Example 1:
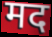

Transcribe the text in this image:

मद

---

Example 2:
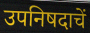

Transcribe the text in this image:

उपनिषदाचें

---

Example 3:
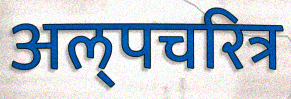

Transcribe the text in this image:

अल्पचरित्र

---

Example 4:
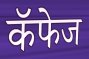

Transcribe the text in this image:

कॅफेज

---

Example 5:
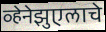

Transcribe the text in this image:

व्हेनेझुएलाचे